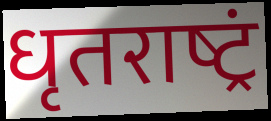
धृतराष्ट्रं